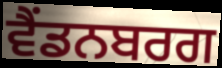
ਵੈਂਡਨਬਰਗ